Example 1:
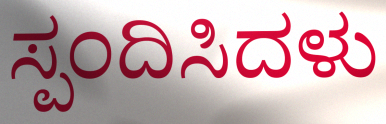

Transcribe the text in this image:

ಸ್ಪಂದಿಸಿದಳು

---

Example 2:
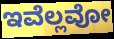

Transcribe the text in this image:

ಇವೆಲ್ಲವೋ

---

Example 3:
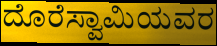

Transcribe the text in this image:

ದೊರೆಸ್ವಾಮಿಯವರ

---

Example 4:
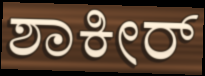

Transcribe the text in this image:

ಶಾಕೀರ್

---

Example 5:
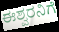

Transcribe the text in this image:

ಈಶ್ವರನಿಗೆ